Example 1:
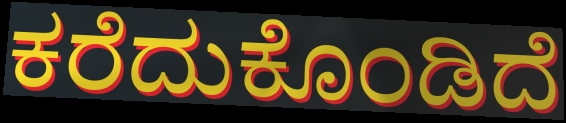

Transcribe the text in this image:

ಕರೆದುಕೊಂಡಿದೆ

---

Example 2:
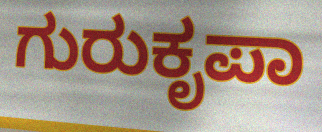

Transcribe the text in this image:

ಗುರುಕೃಪಾ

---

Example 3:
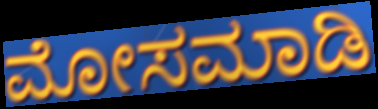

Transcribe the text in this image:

ಮೋಸಮಾಡಿ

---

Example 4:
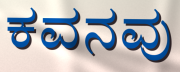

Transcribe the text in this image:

ಕವನವು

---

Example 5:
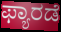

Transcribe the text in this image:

ಫ್ಯಾರಡೆ